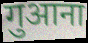
गुआना